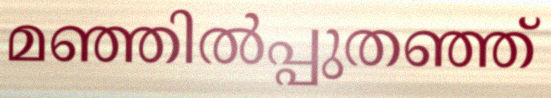
മഞ്ഞിൽപ്പുതഞ്ഞ്